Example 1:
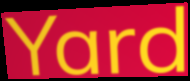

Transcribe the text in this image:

Yard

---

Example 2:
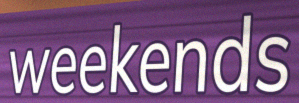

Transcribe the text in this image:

weekends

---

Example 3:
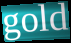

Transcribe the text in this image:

gold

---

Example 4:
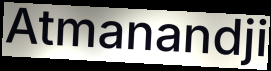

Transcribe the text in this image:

Atmanandji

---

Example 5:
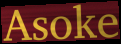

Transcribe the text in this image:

Asoke